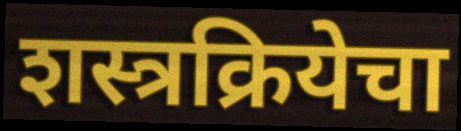
शस्त्रक्रियेचा